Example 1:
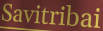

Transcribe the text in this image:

Savitribai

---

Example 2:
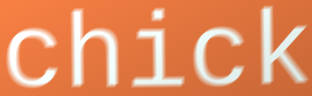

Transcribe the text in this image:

chick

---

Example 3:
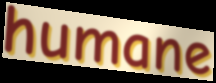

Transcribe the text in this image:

humane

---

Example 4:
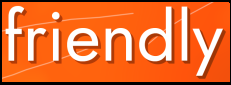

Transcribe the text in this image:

friendly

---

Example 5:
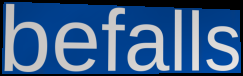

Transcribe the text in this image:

befalls